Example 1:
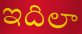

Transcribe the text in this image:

ఇదిలా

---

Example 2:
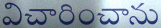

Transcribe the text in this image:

విచారించాను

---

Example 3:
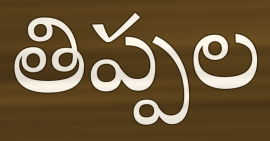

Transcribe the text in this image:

తిప్పల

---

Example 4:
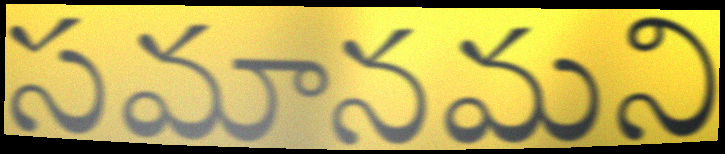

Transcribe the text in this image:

సమానమని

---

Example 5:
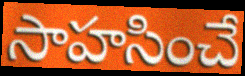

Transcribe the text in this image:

సాహసించే